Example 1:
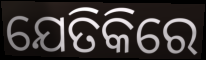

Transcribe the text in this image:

ଯେତିକିରେ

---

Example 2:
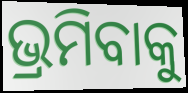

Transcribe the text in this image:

ଭ୍ରମିବାକୁ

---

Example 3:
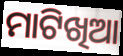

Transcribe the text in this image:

ମାଟିଖିଆ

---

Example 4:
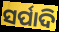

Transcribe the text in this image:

ସର୍ପାଦି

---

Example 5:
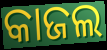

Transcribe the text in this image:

କାଜଲ